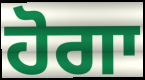
ਹੋਗਾ